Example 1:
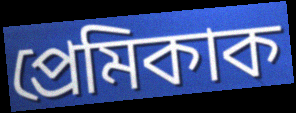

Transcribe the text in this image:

প্ৰেমিকাক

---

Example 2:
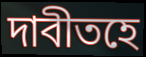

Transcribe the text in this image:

দাবীতহে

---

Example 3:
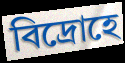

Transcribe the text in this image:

বিদ্ৰোহে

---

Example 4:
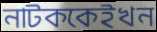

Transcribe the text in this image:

নাটককেইখন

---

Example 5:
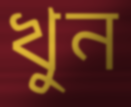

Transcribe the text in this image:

খুন